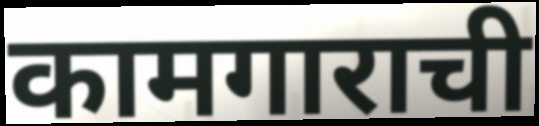
कामगाराची